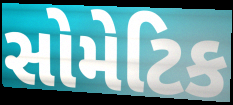
સોમેટિક